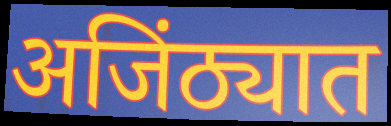
अजिंठ्यात